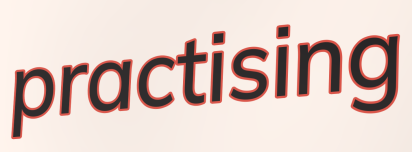
practising